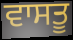
ਵਾਸਤੂ